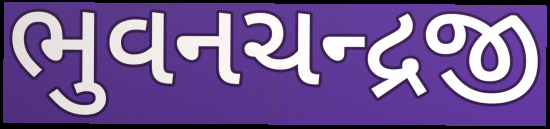
ભુવનચન્દ્રજી